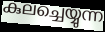
കുലച്ചെയ്യുന്ന